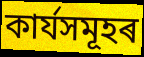
কাৰ্যসমূহৰ